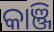
କାଞ୍ଜି